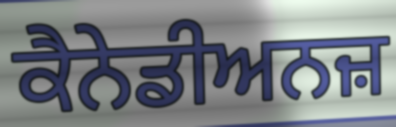
ਕੈਨੇਡੀਅਨਜ਼